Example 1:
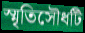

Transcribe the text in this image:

স্মৃতিসৌধটি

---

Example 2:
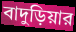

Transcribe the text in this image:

বাদুড়িয়ার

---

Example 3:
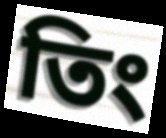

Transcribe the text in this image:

তিং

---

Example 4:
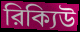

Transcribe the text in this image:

রিক্যিউ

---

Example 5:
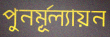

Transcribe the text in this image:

পুনর্মূল্যায়ন